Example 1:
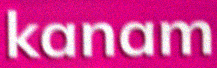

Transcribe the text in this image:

kanam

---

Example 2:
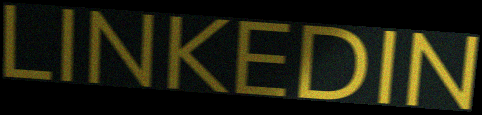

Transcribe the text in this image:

LINKEDIN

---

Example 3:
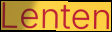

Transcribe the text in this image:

Lenten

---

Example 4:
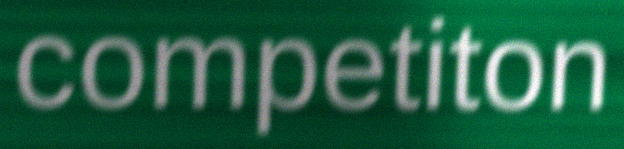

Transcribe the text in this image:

competiton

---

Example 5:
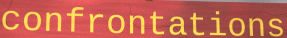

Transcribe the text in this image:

confrontations